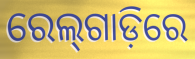
ରେଲ୍‌ଗାଡ଼ିରେ